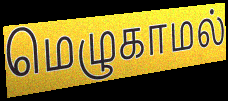
மெழுகாமல்